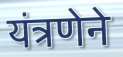
यंत्रणेने